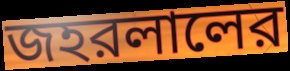
জহরলালের